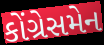
કોંગ્રેસમેન